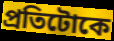
প্ৰতিটোকে